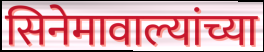
सिनेमावाल्यांच्या